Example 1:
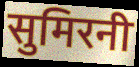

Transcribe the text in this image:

सुमिरनी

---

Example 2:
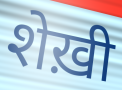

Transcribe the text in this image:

शेख़ी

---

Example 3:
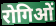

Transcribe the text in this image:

रोगिओं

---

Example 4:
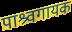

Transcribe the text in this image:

पाश्र्वगायक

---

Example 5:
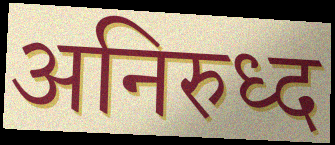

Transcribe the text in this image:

अनिरुध्द